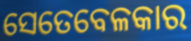
ସେତେବେଳକାର